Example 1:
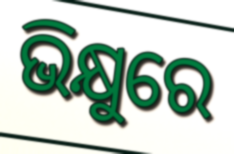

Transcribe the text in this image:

ଭିକ୍ଷୁରେ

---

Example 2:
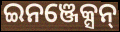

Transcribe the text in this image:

ଇନଞ୍ଜେକ୍ସନ୍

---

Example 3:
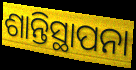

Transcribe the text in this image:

ଶାନ୍ତିସ୍ଥାପନା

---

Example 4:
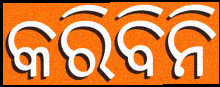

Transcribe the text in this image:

କରିବିନି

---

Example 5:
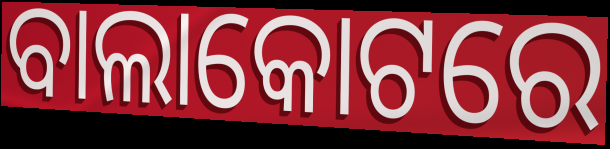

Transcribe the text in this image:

ବାଲାକୋଟରେ